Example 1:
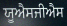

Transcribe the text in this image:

ਯੂਐਸਜੀਐਸ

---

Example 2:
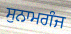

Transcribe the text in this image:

ਸੁਨਾਮਗੰਜ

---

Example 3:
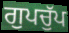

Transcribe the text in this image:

ਗੁਪਚੁੱਪ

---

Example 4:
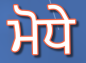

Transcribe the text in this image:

ਮੋਧੇ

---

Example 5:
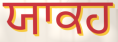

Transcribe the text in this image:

ਯਾਕਹ